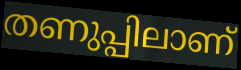
തണുപ്പിലാണ്